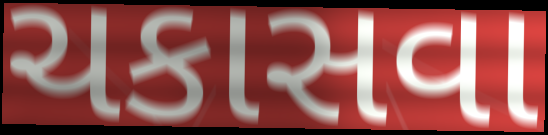
ચકાસવા